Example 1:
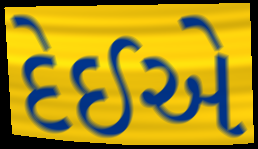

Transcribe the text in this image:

દેઈએ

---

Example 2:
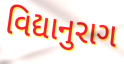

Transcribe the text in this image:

વિદ્યાનુરાગ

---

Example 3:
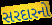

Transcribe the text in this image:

સરદારનો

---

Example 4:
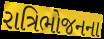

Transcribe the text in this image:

રાત્રિભોજનના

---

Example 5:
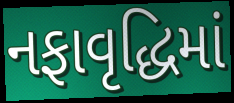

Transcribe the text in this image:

નફાવૃદ્ધિમાં